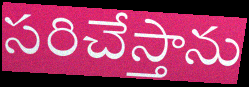
సరిచేస్తాను